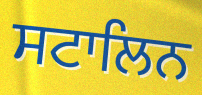
ਸਟਾਲਿਨ